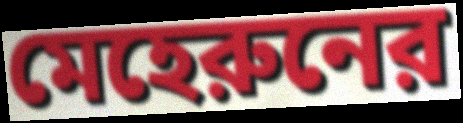
মেহেরুনের